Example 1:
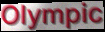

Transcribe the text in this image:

Olympic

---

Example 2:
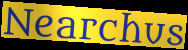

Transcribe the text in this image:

Nearchus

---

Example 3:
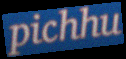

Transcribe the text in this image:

pichhu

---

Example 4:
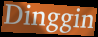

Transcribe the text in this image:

Dinggin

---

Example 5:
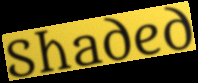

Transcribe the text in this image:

Shaded